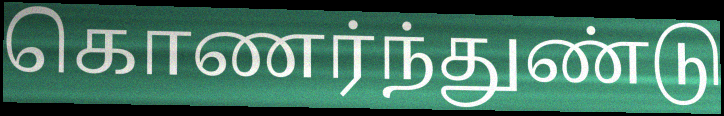
கொணர்ந்துண்டு